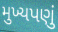
મુખ્યપણું